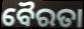
ବୈରତା